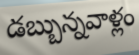
డబ్బున్నవాళ్లం